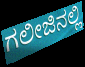
ಗಲೀಜಿನಲ್ಲಿ